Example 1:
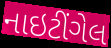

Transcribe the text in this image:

નાઇટીંગેલ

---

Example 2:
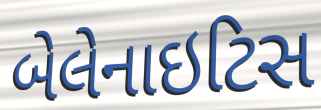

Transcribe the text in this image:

બેલેનાઇટિસ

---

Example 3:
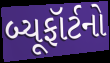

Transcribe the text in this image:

બ્યૂફૉર્ટનો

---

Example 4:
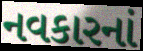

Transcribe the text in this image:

નવકારનાં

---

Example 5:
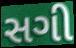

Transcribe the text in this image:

સગી